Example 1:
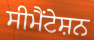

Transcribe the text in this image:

ਸੀਮੈਂਟੇਸ਼ਨ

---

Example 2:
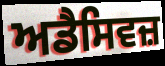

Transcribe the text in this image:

ਅਡੈਸਿਵਜ਼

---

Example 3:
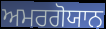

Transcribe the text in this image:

ਅਮਰਗੋਯਾਨ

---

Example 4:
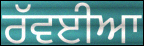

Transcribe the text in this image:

ਰੱਵਈਆ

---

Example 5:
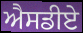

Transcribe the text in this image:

ਐਸਡੀਏ